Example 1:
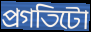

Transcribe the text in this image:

প্ৰগতিটো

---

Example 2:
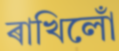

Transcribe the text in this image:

ৰাখিলোঁ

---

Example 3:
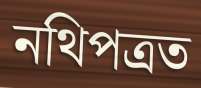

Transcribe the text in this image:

নথিপত্ৰত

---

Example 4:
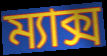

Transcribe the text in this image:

ম্যাক্স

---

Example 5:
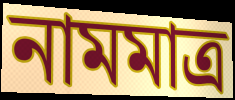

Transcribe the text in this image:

নামমাত্ৰ